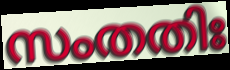
സംതതിഃ